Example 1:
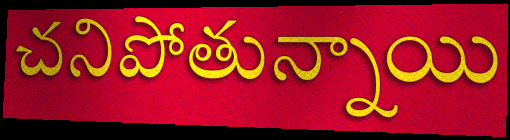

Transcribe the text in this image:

చనిపోతున్నాయి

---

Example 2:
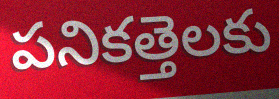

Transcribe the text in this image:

పనికత్తెలకు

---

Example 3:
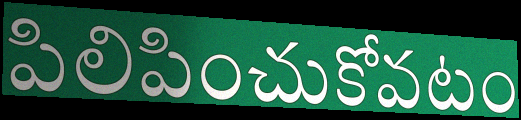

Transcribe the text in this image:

పిలిపించుకోవటం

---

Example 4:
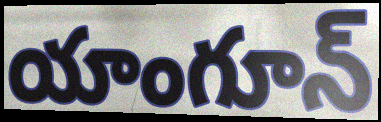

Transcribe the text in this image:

యాంగూన్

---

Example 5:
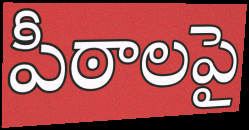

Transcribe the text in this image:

పీఠాలపై